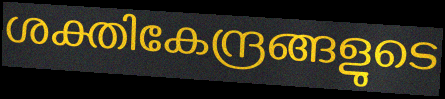
ശക്തികേന്ദ്രങ്ങളുടെ